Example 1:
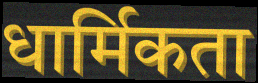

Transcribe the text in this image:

धार्मिकता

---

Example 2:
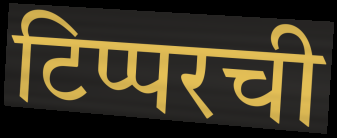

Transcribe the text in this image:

टिप्परची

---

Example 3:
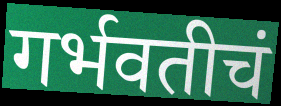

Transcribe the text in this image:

गर्भवतीचं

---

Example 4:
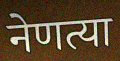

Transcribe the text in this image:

नेणत्या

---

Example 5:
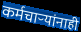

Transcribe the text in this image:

कर्मचाऱ्यांनाही